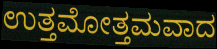
ಉತ್ತಮೋತ್ತಮವಾದ